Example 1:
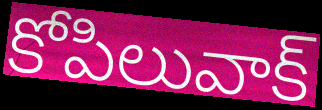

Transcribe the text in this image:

కోపిలువాక్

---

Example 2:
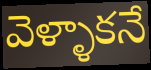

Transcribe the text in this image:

వెళ్ళాకనే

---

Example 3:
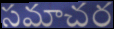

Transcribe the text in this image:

సమాచర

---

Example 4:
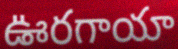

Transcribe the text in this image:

ఊరగాయా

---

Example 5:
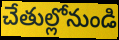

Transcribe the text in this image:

చేతుల్లోనుండి